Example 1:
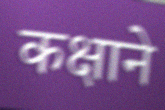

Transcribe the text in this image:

कक्षाने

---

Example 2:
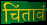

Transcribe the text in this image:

चिंतावं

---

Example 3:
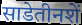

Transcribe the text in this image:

साडेतीनशें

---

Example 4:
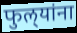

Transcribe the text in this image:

फुल्यांना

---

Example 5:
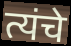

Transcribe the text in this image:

त्यंचे